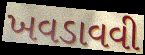
ખવડાવવી